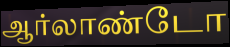
ஆர்லாண்டோ